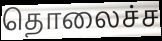
தொலைச்ச